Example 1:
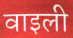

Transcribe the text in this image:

वाइली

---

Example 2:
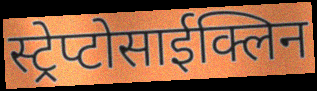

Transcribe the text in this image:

स्ट्रेप्टोसाईक्लिन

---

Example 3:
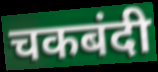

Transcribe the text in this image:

चकबंदी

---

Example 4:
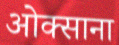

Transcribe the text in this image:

ओक्साना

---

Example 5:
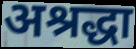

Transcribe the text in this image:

अश्रद्धा